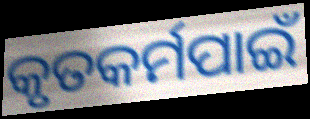
କୃତକର୍ମପାଇଁ